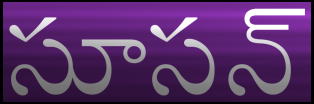
సూసన్